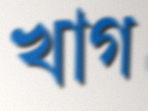
খাগ